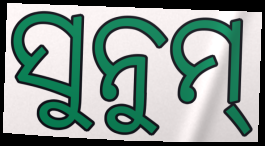
ସୁନୁମ୍